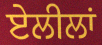
ਏਲੀਲਾਂ